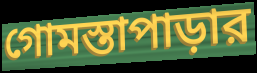
গোমস্তাপাড়ার